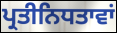
ਪ੍ਰਤੀਨਿਧਤਾਵਾਂ